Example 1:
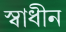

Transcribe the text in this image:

স্বাধীন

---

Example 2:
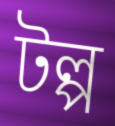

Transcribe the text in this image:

টল্প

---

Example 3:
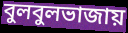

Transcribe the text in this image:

বুলবুলভাজায়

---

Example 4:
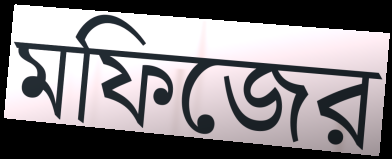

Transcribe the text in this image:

মফিজের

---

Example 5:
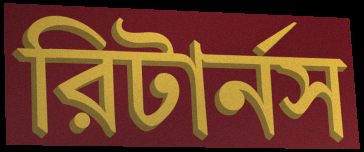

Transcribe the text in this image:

রিটার্নস